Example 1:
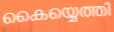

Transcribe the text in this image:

കൈയ്യെത്തി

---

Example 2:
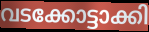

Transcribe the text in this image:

വടക്കോട്ടാക്കി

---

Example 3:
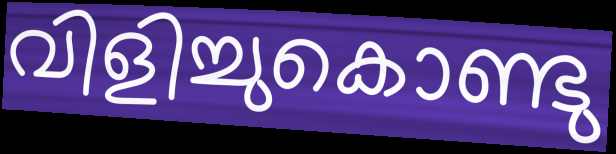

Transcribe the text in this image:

വിളിച്ചുകൊണ്ടു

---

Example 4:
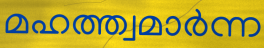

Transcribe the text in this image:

മഹത്ത്വമാർന്ന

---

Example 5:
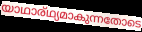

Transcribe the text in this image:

യാഥാര്ഥ്യമാകുന്നതോടെ